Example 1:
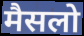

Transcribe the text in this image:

मैसलो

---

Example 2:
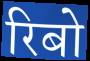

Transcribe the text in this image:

रिबो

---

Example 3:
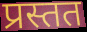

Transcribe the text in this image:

प्रस्तत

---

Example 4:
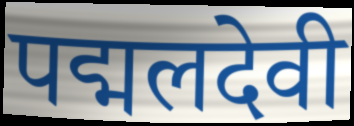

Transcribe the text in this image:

पद्मलदेवी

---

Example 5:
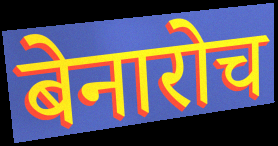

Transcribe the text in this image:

बेनारोच